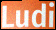
Ludi